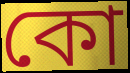
কো